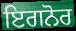
ਇਗਨੋਰ